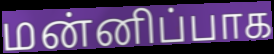
மன்னிப்பாக